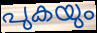
പുകയും